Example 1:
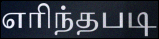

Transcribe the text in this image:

எரிந்தபடி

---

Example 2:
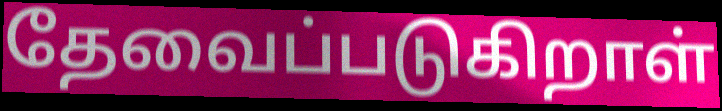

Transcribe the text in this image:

தேவைப்படுகிறாள்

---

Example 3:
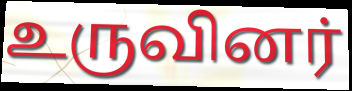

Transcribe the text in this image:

உருவினர்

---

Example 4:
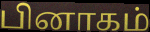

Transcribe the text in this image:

பினாகம்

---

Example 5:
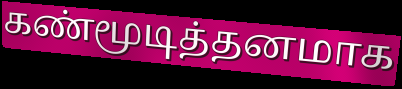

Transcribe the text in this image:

கண்மூடித்தனமாக